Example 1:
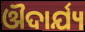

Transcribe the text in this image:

ଔଦାର୍ଯ୍ୟ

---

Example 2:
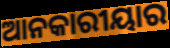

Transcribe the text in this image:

ଆନକାରୀୟାର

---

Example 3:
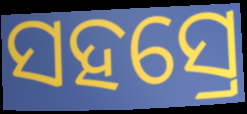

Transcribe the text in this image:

ସହସ୍ରେ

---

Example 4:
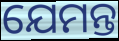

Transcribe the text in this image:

ଯେମନ୍ତ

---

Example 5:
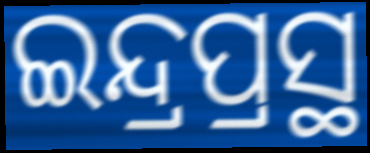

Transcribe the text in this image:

ଇନ୍ଦ୍ରପ୍ରସ୍ଥ